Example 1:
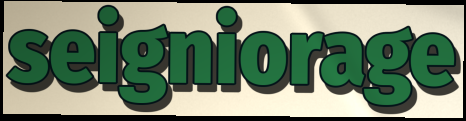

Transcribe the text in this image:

seigniorage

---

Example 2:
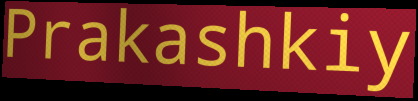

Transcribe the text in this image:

Prakashkiy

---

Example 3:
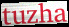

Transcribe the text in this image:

tuzha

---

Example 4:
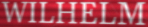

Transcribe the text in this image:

WILHELM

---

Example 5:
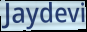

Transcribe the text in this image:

Jaydevi